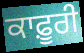
ਕਾਫ਼ੂਰੀ